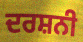
ਦਰਸ਼ਨੀ